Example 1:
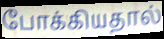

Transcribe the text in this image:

போக்கியதால்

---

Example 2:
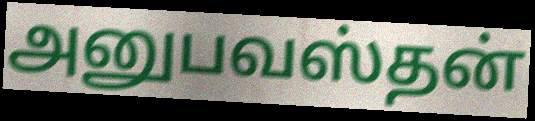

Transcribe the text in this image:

அனுபவஸ்தன்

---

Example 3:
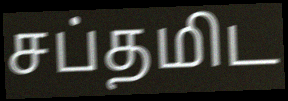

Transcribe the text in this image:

சப்தமிட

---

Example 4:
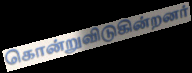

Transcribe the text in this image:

கொன்றுவிடுகின்றனர்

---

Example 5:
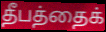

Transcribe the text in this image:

தீபத்தைக்